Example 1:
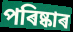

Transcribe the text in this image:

পৰিষ্কাৰ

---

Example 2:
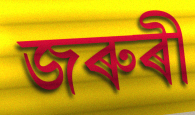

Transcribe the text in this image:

জৰুৰী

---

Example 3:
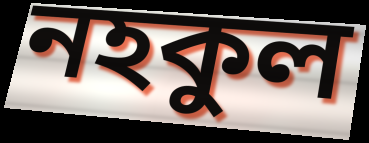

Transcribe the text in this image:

নহকুল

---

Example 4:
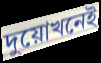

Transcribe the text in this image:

দুয়োখনেই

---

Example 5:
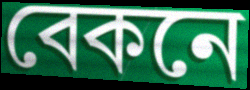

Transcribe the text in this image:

বেকনে